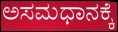
ಅಸಮಧಾನಕ್ಕೆ